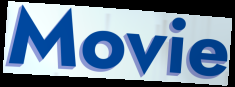
Movie